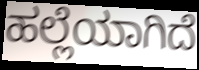
ಹಲ್ಲೆಯಾಗಿದೆ